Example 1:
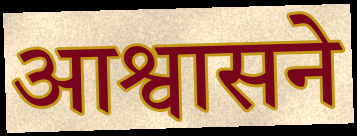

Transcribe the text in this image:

आश्वासने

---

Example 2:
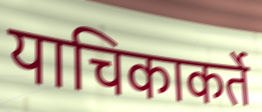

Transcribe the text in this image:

याचिकाकर्ते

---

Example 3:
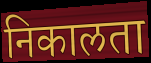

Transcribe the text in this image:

निकालता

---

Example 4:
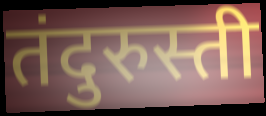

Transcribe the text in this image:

तंदुरुस्ती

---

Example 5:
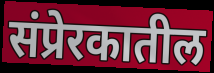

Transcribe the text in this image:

संप्रेरकातील